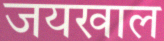
जयखाल